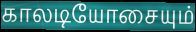
காலடியோசையும்